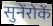
सुनेंरोकें